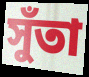
সুঁতা